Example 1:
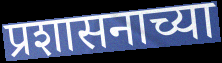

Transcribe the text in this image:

प्रशासनाच्या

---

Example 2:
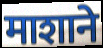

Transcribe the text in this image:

माशाने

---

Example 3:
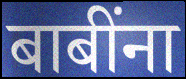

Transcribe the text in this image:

बाबींना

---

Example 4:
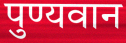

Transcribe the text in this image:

पुण्यवान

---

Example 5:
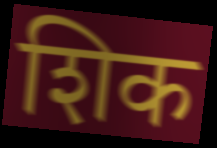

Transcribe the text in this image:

शिक